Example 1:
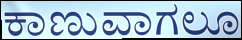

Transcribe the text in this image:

ಕಾಣುವಾಗಲೂ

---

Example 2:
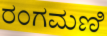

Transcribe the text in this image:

ರಂಗಮಣಿ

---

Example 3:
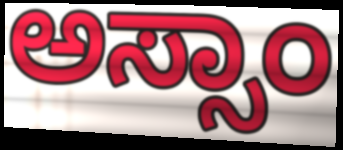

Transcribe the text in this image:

ಅಸ್ಸಾಂ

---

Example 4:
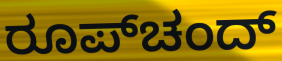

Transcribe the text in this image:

ರೂಪ್‌ಚಂದ್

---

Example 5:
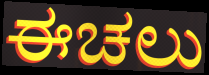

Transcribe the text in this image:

ಈಚಲು